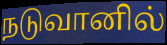
நடுவானில்